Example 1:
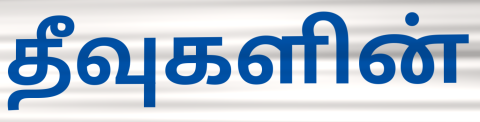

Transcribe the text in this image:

தீவுகளின்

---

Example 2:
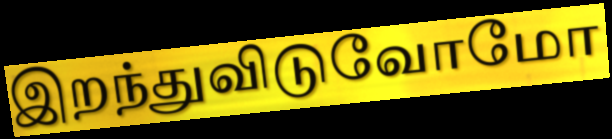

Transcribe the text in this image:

இறந்துவிடுவோமோ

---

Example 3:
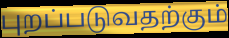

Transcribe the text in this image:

புறப்படுவதற்கும்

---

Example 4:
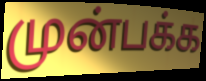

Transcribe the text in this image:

முன்பக்க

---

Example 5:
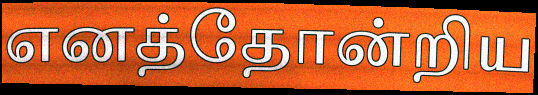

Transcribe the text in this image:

எனத்தோன்றிய